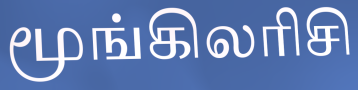
மூங்கிலரிசி